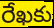
రేఖకు